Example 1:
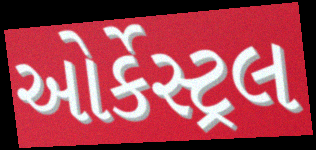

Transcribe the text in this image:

ઓર્કેસ્ટ્રલ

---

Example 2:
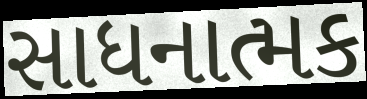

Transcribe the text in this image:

સાધનાત્મક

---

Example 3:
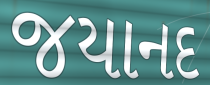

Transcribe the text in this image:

જયાનદ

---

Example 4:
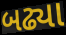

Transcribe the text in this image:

બઢ્યા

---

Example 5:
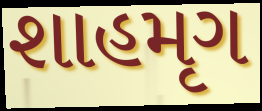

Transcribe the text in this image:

શાહમૃગ